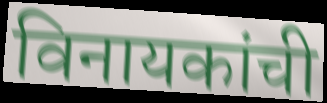
विनायकांची